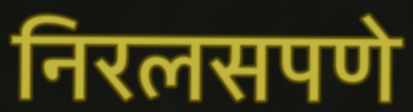
निरलसपणे